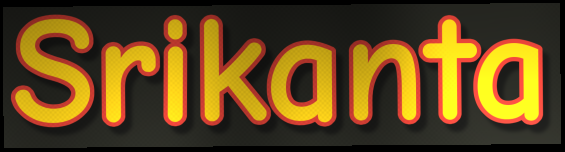
Srikanta